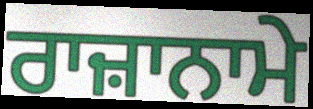
ਰਾਜ਼ਾਨਾਮੇ